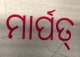
ମାର୍ପତ୍